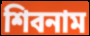
শিবনাম